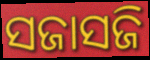
ସଜାସଜି